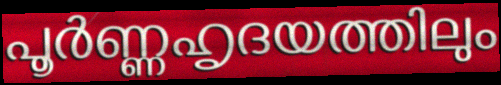
പൂർണ്ണഹൃദയത്തിലും